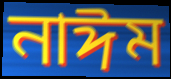
নাঈম